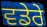
ਵਡੇਰੇ